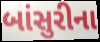
બાંસુરીના